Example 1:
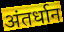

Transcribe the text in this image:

अंतर्धान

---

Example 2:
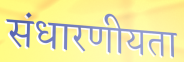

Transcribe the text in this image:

संधारणीयता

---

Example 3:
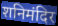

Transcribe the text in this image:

शनिमंदिर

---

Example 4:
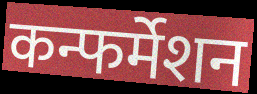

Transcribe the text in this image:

कन्फर्मेशन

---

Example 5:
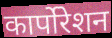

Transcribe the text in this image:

कार्पोरेशन